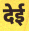
देई